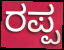
ರಪ್ಪ